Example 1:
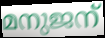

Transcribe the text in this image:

മനുജന്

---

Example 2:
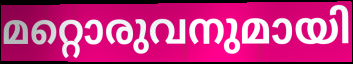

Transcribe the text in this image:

മറ്റൊരുവനുമായി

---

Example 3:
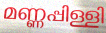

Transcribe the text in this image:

മണ്ണപ്പിള്ളി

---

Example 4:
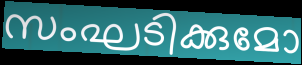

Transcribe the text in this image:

സംഘടിക്കുമോ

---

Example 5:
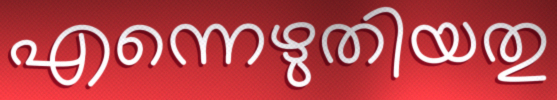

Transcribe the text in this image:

എന്നെഴുതിയതു